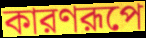
কারণরূপে